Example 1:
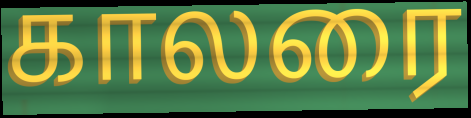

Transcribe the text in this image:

காலரை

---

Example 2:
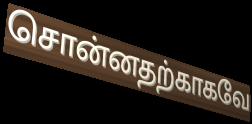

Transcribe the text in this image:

சொன்னதற்காகவே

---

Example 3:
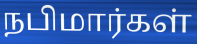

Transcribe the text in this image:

நபிமார்கள்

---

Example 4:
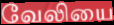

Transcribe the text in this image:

வேலியை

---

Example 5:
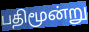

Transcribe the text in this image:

பதிமூன்று